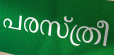
പരസ്ത്രീ